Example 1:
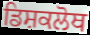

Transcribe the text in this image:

ਡਿਸ਼ਕਲੋਥ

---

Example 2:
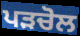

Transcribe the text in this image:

ਪੜਚੋਲ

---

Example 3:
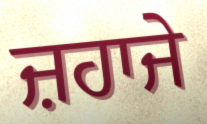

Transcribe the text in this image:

ਜ਼ਹਾਜੇ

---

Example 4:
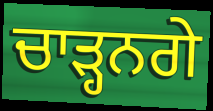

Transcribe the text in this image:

ਚਾੜ੍ਹਨਗੇ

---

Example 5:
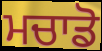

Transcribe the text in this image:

ਮਚਾਡੋ